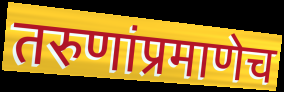
तरुणांप्रमाणेच